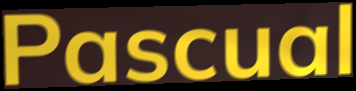
Pascual